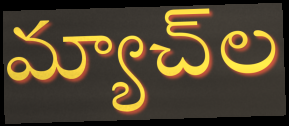
మ్యాచ్‌ల